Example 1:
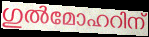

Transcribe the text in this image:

ഗുൽമോഹറിന്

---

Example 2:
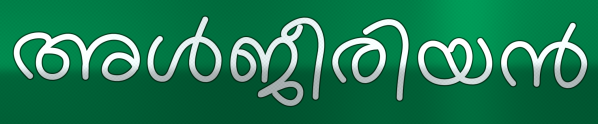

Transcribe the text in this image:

അൾജീരിയൻ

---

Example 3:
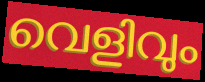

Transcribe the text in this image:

വെളിവും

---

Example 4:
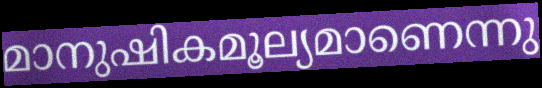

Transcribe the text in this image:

മാനുഷികമൂല്യമാണെന്നു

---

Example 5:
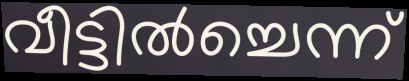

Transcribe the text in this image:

വീട്ടിൽച്ചെന്ന്